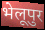
भेलूपुर